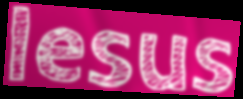
Iesus